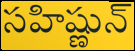
సహిష్ణున్